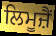
ਲਿਮੂਜ਼ੈਂ